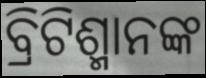
ବ୍ରିଟିଶ୍ମାନଙ୍କ